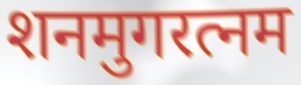
शनमुगरत्नम